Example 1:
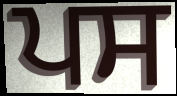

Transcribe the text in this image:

ਪਸ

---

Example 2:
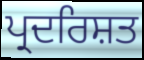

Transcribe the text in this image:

ਪ੍ਰਦਰਿਸ਼ਤ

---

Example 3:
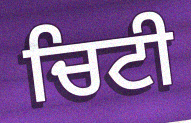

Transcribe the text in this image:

ਚਿਟੀ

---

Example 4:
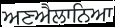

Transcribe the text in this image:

ਅਣਐਲਾਨਿਆ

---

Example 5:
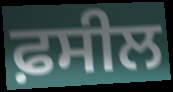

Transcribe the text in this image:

ਫ਼ਸੀਲ